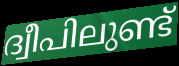
ദ്വീപിലുണ്ട്